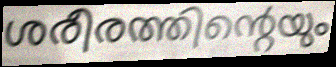
ശരീരത്തിന്റെയും